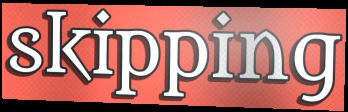
skipping